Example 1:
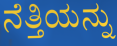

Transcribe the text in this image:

ನೆತ್ತಿಯನ್ನು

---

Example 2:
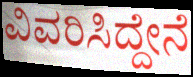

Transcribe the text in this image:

ವಿವರಿಸಿದ್ದೇನೆ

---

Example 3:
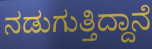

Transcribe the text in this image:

ನಡುಗುತ್ತಿದ್ದಾನೆ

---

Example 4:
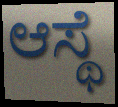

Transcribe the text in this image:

ಆಸ್ಥೆ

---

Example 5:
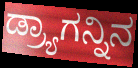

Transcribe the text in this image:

ಡ್ರ್ಯಾಗನ್ನಿನ